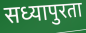
सध्यापुरता